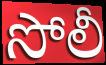
సోలీ